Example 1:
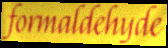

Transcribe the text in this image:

formaldehyde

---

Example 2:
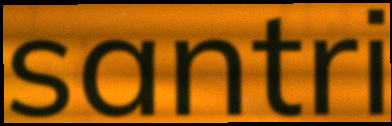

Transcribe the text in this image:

santri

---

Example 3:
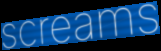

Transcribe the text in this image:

screams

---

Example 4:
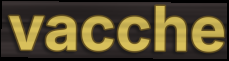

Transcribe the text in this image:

vacche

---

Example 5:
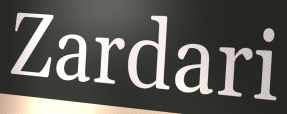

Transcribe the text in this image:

Zardari